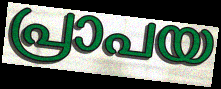
പ്രാപയ